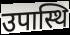
उपास्थि